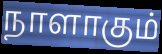
நாளாகும்